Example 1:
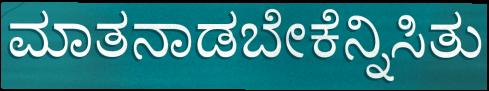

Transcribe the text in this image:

ಮಾತನಾಡಬೇಕೆನ್ನಿಸಿತು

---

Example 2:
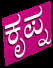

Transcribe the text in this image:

ಕೃಪ್ನ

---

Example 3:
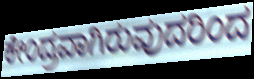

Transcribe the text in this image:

ಕೇಂದ್ರವಾಗಿರುವುದರಿಂದ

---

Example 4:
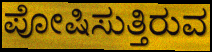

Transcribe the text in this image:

ಪೋಷಿಸುತ್ತಿರುವ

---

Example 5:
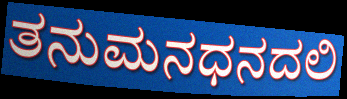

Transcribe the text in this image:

ತನುಮನಧನದಲಿ